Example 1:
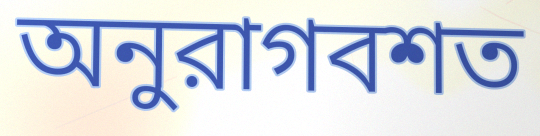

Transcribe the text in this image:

অনুরাগবশত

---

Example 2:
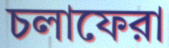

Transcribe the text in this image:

চলাফেরা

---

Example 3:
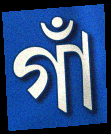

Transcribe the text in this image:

গাঁ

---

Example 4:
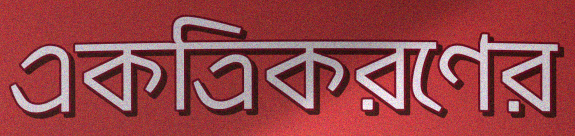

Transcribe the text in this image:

একত্রিকরণের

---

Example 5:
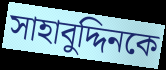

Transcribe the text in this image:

সাহাবুদ্দিনকে